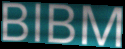
BIBM